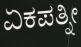
ಏಕಪತ್ನೀ